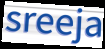
sreeja